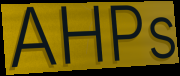
AHPs